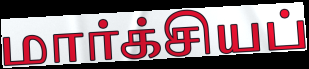
மார்க்சியப்